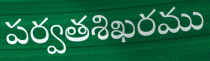
పర్వతశిఖరము